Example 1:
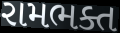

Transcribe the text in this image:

રામભક્ત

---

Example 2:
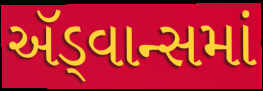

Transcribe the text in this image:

ઍડ્વાન્સમાં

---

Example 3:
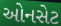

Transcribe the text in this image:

ઓનસેટ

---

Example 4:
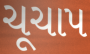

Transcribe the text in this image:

ચૂચાપ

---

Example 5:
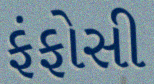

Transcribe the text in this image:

ફંફોસી